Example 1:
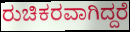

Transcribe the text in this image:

ರುಚಿಕರವಾಗಿದ್ದರೆ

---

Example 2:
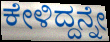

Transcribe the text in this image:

ಕೇಳಿದ್ದನ್ನೇ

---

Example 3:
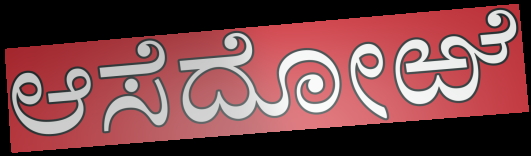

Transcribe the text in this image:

ಆಸೆದೋಱೆ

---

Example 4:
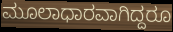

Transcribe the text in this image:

ಮೂಲಾಧಾರವಾಗಿದ್ದರೂ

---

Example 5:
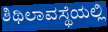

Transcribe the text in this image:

ಶಿಥಿಲಾವಸ್ಥೆಯಲ್ಲಿ